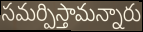
సమర్పిస్తామన్నారు